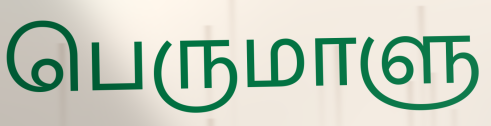
பெருமாளு